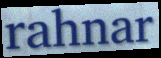
rahnar